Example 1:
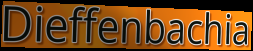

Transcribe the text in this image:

Dieffenbachia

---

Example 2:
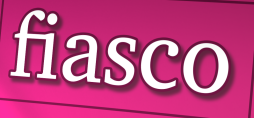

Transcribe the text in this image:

fiasco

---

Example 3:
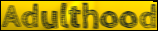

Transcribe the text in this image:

Adulthood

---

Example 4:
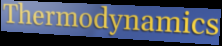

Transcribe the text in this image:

Thermodynamics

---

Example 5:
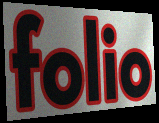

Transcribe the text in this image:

folio